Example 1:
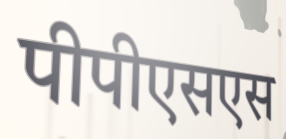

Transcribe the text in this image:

पीपीएसएस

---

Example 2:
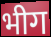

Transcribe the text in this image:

भीग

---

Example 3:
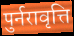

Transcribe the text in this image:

पुर्नरावृत्ति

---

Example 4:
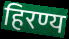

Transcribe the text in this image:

हिरण्य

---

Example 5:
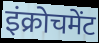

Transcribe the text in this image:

इंक्रोचमेंट